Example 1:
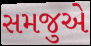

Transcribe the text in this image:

સમજુએ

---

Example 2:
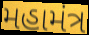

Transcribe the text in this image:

મહામંત્ર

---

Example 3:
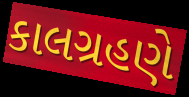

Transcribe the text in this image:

કાલગ્રહણે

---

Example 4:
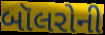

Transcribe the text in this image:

બૉલરોની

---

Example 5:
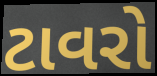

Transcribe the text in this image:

ટાવરો